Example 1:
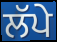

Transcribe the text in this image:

ਲੱਪੇ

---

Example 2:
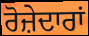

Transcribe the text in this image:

ਰੋਜ਼ੇਦਾਰਾਂ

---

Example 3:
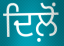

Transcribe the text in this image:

ਦਿਲ਼ੋਂ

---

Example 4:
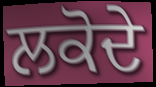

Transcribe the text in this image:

ਲਕੋਦੇ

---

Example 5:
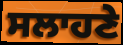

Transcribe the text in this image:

ਸਲਾਹਣੇ